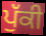
ਪੁੱਕੀ